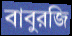
বাবুরজি